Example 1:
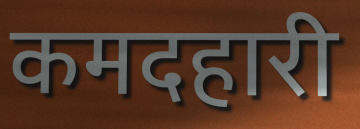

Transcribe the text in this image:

कमदहारी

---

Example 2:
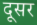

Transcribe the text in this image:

दूसर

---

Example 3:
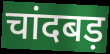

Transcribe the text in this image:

चांदबड़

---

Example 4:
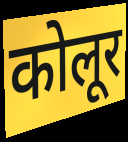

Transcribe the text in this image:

कोलूर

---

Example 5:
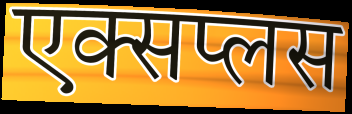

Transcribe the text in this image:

एक्सप्लस